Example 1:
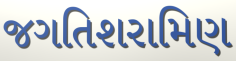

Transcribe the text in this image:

જગતિશરામિણ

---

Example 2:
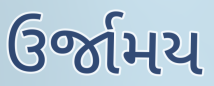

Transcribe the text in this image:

ઉર્જામય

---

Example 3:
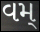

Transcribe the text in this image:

વમ્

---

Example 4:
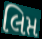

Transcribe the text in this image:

લિપ્ત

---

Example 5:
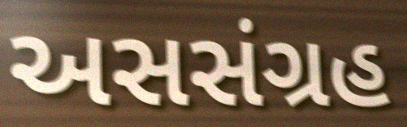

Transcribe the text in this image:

અસસંગ્રહ